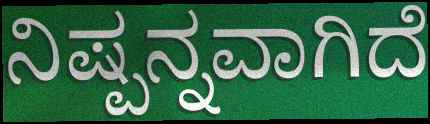
ನಿಷ್ಪನ್ನವಾಗಿದೆ